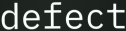
defect